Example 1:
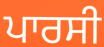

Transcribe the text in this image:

ਪਾਰਸੀ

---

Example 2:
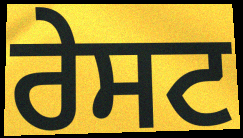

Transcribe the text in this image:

ਰੇਸਟ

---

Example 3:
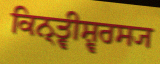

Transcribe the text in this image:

ਕਿਨ੍ਤ੍ਵੀਸ਼੍ਵਰਸ੍ਯ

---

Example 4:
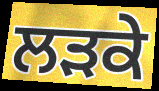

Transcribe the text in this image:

ਲਡ਼ਕੇ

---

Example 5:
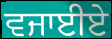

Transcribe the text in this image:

ਵਜਾਈਏ